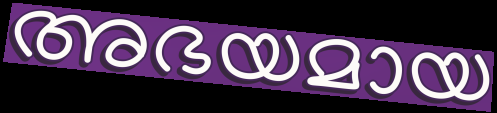
അഭയമായ